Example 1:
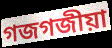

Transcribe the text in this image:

গজগজীয়া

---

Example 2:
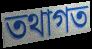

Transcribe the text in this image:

তথাগত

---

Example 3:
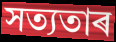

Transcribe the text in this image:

সত্যতাৰ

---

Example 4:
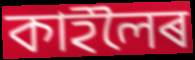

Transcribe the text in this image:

কাইলৈৰ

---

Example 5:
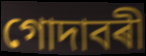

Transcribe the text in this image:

গোদাবৰী